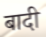
बादी